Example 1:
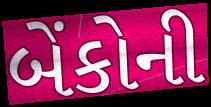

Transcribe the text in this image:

બેંકોની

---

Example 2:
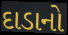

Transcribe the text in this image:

દાડાનો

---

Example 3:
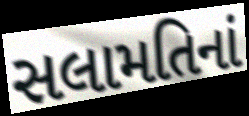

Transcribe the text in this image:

સલામતિનાં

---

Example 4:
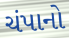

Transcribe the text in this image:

ચંપાનો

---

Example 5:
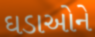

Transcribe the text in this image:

ઘડાઓને